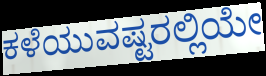
ಕಳೆಯುವಷ್ಟರಲ್ಲಿಯೇ